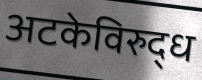
अटकेविरुद्ध